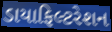
ડાયાફિલ્ટરેશન